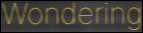
Wondering